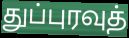
துப்புரவுத்